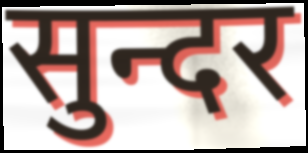
सुन्दर